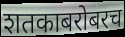
शतकाबरोबरच